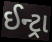
ઈન્ટ્રા